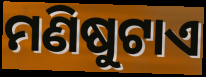
ମଣିଷୁଟାଏ